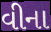
વીના